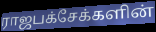
ராஜபக்சேக்களின்